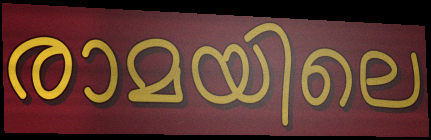
രാമയിലെ